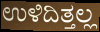
ಉಳಿದಿತ್ತಲ್ಲ